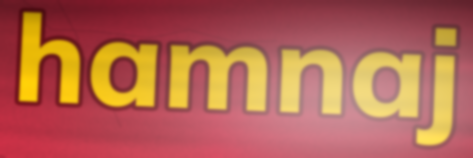
hamnaj